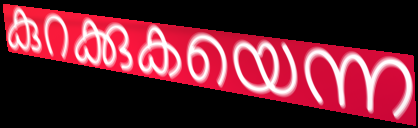
കുറക്കുകയെന്ന